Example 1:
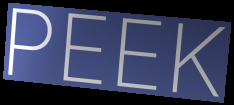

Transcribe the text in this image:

PEEK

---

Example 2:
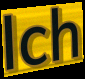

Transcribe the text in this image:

Ich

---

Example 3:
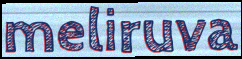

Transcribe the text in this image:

meliruva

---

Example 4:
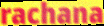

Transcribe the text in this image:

rachana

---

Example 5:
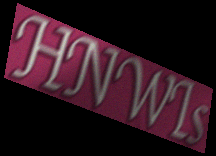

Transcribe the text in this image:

HNWIs